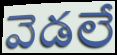
వెడలే